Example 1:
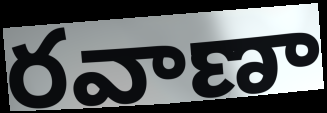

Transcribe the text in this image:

రవాణా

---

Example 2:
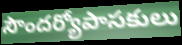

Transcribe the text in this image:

సౌందర్యోపాసకులు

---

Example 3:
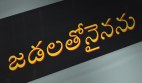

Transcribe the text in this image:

జడలతోనైనను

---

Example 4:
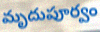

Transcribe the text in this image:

మృదుపూర్వం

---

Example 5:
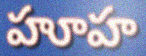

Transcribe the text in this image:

హూహ